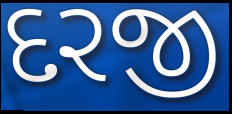
દરજી